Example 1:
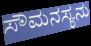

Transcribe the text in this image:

ಸೌಮನಸ್ಯನು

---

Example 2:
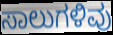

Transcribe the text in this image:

ಸಾಲುಗಳಿವು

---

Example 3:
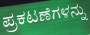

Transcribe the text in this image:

ಪ್ರಕಟಣೆಗಳನ್ನು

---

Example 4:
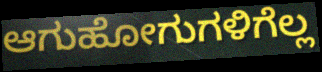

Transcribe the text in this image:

ಆಗುಹೋಗುಗಳಿಗೆಲ್ಲ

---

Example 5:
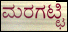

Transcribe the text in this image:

ಮರಗಟ್ಟಿ